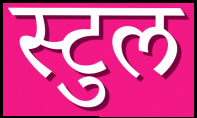
स्टुल